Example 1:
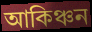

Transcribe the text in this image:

আকিঞ্চন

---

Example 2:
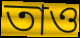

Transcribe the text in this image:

তাও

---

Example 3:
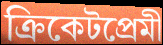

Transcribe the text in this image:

ক্রিকেটপ্রেমী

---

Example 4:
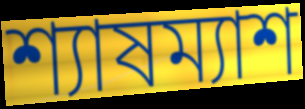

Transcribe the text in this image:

শ্যাষম্যাশ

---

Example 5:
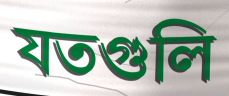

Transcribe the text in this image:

যতগুলি